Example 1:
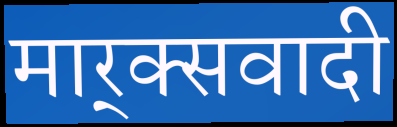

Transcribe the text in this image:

मार्क्सवादी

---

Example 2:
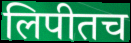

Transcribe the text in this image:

लिपीतच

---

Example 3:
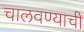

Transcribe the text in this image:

चालवण्याची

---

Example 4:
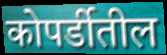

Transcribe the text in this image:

कोपर्डीतील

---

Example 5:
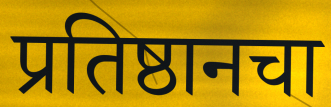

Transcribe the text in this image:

प्रतिष्ठानचा